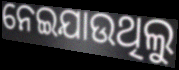
ନେଇଯାଉଥିଲୁ